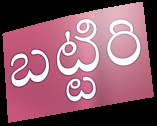
బట్టిరి